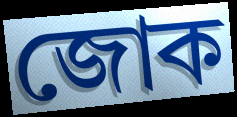
জোক